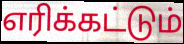
எரிக்கட்டும்